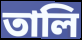
তালি